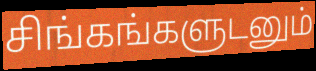
சிங்கங்களுடனும்